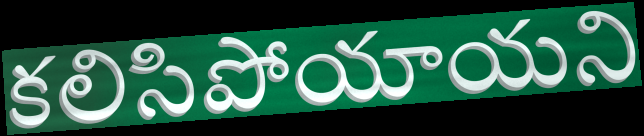
కలిసిపోయాయని